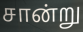
சான்று